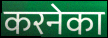
करनेका